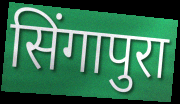
सिंगापुरा